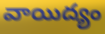
వాయిద్యం